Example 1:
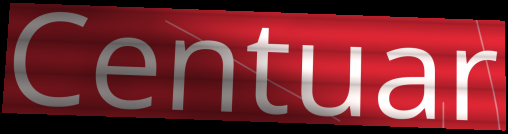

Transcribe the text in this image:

Centuar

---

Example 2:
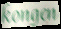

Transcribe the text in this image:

kongen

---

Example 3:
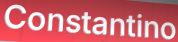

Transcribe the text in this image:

Constantino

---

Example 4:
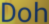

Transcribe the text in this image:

Doh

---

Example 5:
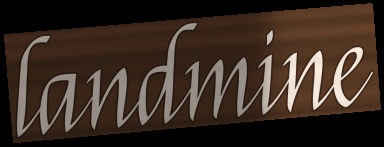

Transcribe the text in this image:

landmine